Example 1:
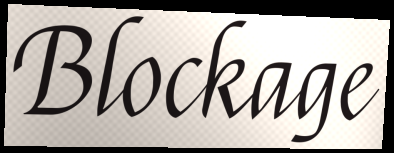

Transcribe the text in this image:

Blockage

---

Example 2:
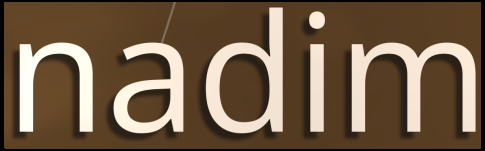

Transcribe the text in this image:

nadim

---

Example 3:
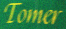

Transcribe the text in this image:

Tomer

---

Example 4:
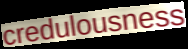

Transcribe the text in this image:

credulousness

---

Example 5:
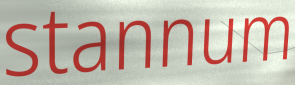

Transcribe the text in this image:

stannum